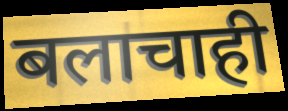
बलाचाही